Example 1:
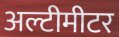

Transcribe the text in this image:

अल्टीमीटर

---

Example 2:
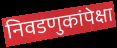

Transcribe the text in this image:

निवडणुकांपेक्षा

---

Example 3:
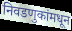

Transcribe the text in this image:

निवडणुकांमधून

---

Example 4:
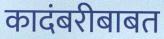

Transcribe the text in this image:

कादंबरीबाबत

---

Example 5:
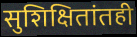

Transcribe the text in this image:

सुशिक्षितांतही